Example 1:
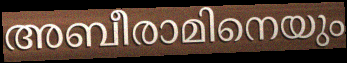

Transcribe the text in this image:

അബീരാമിനെയും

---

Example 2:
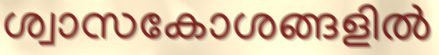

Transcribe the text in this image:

ശ്വാസകോശങ്ങളിൽ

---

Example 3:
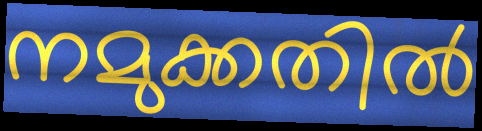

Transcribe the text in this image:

നമുക്കതിൽ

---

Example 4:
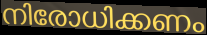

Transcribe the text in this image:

നിരോധിക്കണം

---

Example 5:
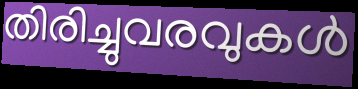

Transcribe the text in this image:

തിരിച്ചുവരവുകൾ